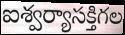
ఐశ్వర్యాసక్తిగల